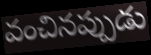
వంచినప్పుడు